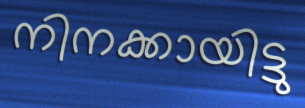
നിനക്കായിട്ടു